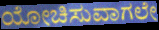
ಯೋಚಿಸುವಾಗಲೇ